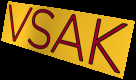
VSAK